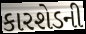
કારશેડની